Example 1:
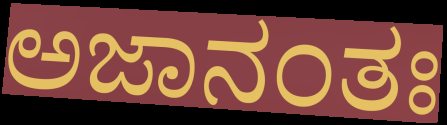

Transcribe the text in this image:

ಅಜಾನಂತಃ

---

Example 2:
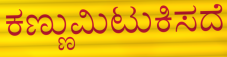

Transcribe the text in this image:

ಕಣ್ಣುಮಿಟುಕಿಸದೆ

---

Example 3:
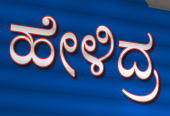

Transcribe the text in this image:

ಹೇಳಿದ್ರ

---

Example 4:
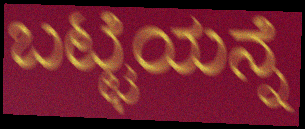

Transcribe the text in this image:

ಬಟ್ಟೆಯನ್ನೆ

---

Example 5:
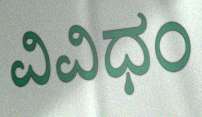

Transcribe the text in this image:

ವಿವಿಧಂ